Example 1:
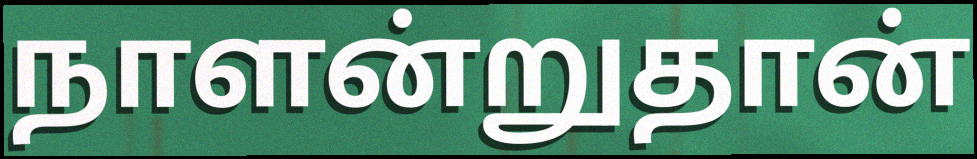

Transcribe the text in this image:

நாளன்றுதான்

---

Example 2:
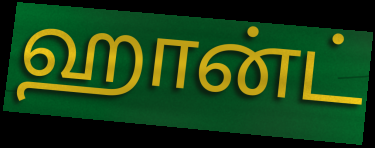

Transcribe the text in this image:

ஹான்ட்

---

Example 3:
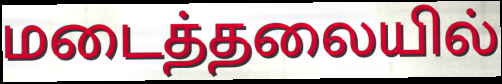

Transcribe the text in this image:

மடைத்தலையில்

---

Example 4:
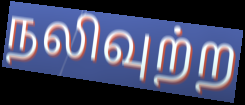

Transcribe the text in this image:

நலிவுற்ற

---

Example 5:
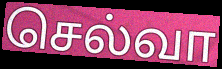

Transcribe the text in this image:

செல்வா